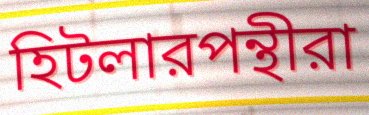
হিটলারপন্থীরা